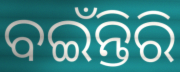
ବଇଁନ୍ତିରି